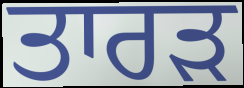
ਤਾਰੜ